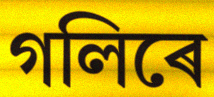
গলিৰে